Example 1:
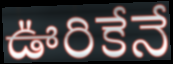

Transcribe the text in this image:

ఊరికేనే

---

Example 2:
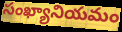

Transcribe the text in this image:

సంఖ్యానియమం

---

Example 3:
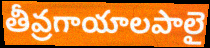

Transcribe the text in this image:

తీవ్రగాయాలపాలై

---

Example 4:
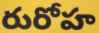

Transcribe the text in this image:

రురోహ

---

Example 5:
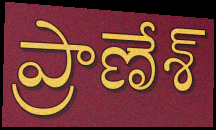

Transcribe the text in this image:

ప్రాణేశ్